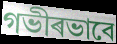
গভীৰভাবে